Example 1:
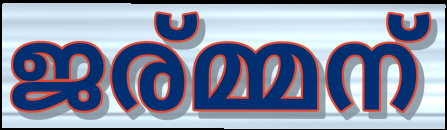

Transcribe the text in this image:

ജര്മ്മന്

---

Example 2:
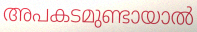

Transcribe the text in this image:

അപകടമുണ്ടായാൽ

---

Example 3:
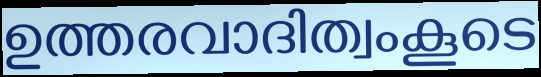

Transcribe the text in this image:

ഉത്തരവാദിത്വംകൂടെ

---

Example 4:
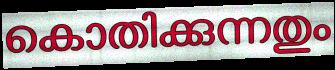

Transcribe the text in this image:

കൊതിക്കുന്നതും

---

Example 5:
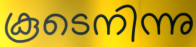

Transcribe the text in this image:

കൂടെനിന്നു